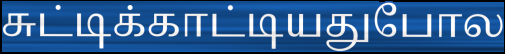
சுட்டிக்காட்டியதுபோல